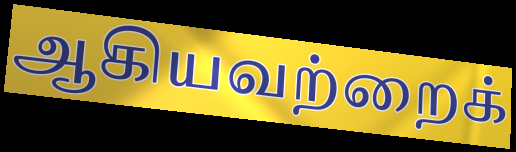
ஆகியவற்றைக்